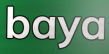
baya